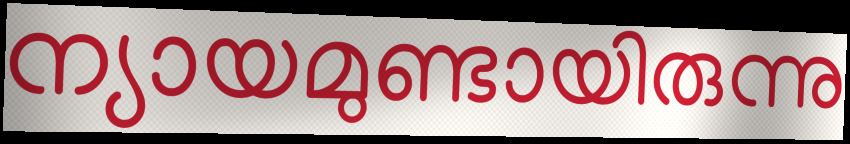
ന്യായമുണ്ടായിരുന്നു